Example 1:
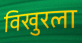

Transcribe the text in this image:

विखुरला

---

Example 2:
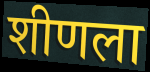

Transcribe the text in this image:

शीणला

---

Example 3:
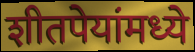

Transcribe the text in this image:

शीतपेयांमध्ये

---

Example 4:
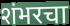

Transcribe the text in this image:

शंभरचा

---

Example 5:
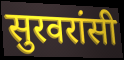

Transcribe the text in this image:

सुरवरांसी